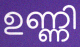
ഉണ്ണി